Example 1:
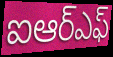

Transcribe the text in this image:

ఐఆర్ఎఫ్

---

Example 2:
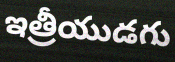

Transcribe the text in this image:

ఇత్రీయుడగు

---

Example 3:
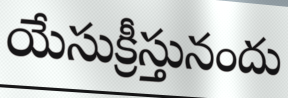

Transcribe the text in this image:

యేసుక్రీస్తునందు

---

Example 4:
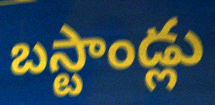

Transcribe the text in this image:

బస్టాండ్లు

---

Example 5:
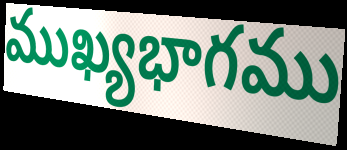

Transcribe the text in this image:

ముఖ్యభాగము